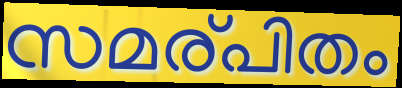
സമര്പിതം